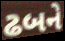
ઢબને